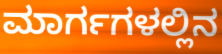
ಮಾರ್ಗಗಳಲ್ಲಿನ